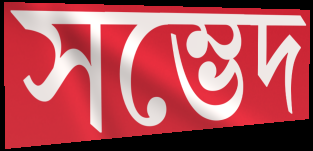
সম্ভেদ